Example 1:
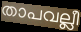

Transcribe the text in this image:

താപവല്ലീ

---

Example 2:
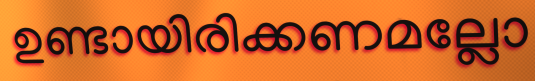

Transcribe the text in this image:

ഉണ്ടായിരിക്കണമല്ലോ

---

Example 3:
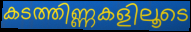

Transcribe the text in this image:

കടത്തിണ്ണകളിലൂടെ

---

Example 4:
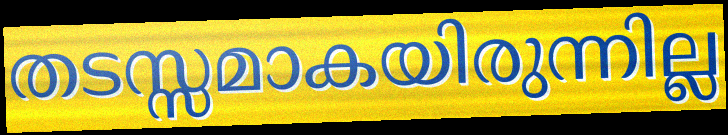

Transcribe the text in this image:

തടസ്സമാകയിരുന്നില്ല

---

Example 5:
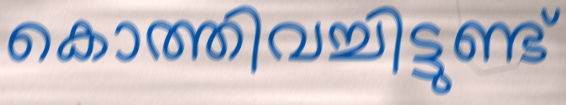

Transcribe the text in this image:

കൊത്തിവച്ചിട്ടുണ്ട്